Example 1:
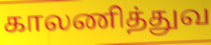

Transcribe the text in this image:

காலணித்துவ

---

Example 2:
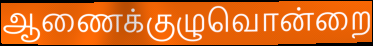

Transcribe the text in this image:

ஆணைக்குழுவொன்றை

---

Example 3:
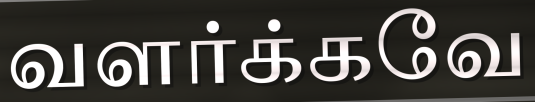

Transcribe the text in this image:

வளர்க்கவே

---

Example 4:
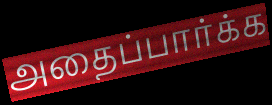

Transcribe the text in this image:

அதைப்பார்க்க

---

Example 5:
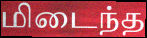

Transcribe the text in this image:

மிடைந்த